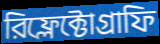
রিফ্লেক্টোগ্রাফি